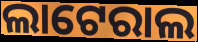
ଲାଟେରାଲ